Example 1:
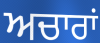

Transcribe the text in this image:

ਅਚਾਰਾਂ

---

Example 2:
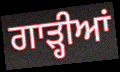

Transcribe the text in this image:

ਗਾੜ੍ਹੀਆਂ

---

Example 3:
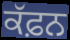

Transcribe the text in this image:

ਕੱਫ਼ਨ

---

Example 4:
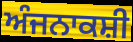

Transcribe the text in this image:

ਅੰਜਨਾਕਸ਼ੀ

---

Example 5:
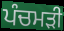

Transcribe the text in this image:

ਪੰਚਮੜੀ